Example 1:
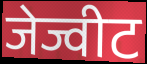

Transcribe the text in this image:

जेज्वीट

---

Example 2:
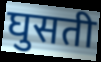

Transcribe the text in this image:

घुसती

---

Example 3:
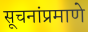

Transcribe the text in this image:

सूचनांप्रमाणे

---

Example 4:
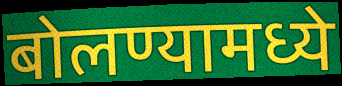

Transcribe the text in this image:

बोलण्यामध्ये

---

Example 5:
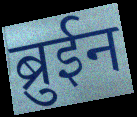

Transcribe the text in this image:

ब्रुईन